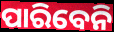
ପାରିବେନି